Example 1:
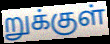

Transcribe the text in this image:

றுக்குள்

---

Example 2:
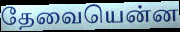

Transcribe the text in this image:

தேவையென்ன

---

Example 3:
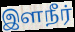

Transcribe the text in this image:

இளநீர்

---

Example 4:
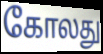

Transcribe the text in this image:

கோலது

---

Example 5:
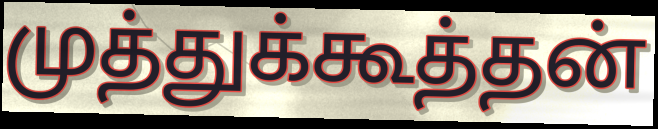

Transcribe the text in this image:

முத்துக்கூத்தன்